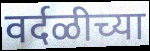
वर्दळीच्या